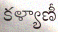
కళ్యాణీ